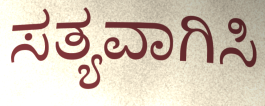
ಸತ್ಯವಾಗಿಸಿ